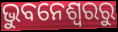
ଭୁବନେଶ୍ୱରରୁ